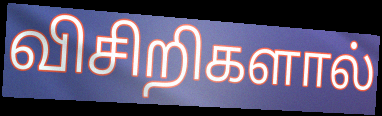
விசிறிகளால்